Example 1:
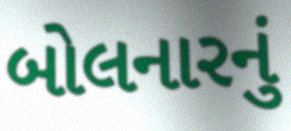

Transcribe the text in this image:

બોલનારનું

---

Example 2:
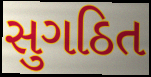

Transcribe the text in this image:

સુગઠિત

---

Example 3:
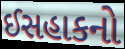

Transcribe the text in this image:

ઈસહાકનો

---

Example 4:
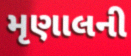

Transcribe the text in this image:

મૃણાલની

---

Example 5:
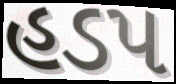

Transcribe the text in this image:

હડપ